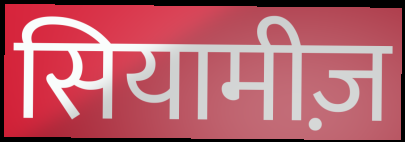
सियामीज़